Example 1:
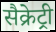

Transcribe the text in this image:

सैक्रेट्री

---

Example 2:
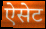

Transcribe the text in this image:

ऐसेट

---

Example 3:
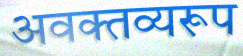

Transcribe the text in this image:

अवक्तव्यरूप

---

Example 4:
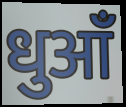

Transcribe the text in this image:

धुआँ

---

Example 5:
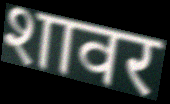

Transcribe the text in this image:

शावर